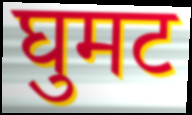
घुमट